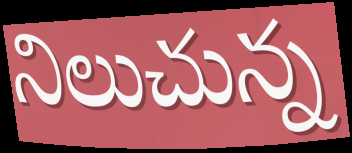
నిలుచున్న